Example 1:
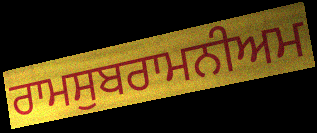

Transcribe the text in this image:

ਰਾਮਸੁਬਰਾਮਨੀਅਮ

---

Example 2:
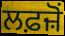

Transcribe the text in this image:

ਲਫ਼ਜ਼ੋਂ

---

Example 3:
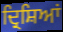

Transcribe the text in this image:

ਦ੍ਰਿਸ਼ਿਆਂ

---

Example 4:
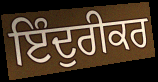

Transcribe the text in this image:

ਇੰਦੁਰੀਕਰ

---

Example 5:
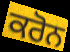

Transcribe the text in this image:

ਕਰੋਨ